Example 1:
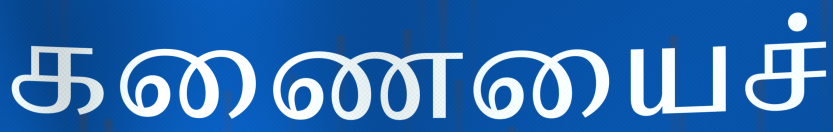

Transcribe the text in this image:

கணையைச்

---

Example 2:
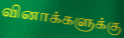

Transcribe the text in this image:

வினாக்களுக்கு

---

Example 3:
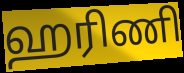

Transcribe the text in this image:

ஹரிணி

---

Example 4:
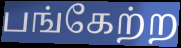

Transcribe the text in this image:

பங்கேற்ற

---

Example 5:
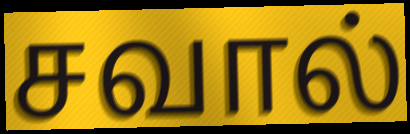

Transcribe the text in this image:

சவால்